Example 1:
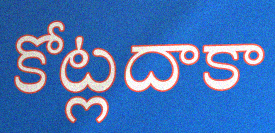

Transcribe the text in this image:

కోట్లదాకా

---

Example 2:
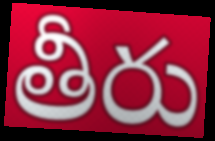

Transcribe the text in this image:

తీరు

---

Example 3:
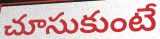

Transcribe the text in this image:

చూసుకుంటే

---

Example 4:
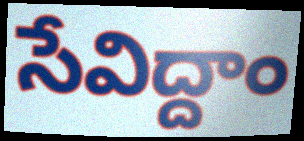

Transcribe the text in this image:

సేవిద్దాం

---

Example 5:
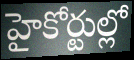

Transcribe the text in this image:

హైకోర్టుల్లో